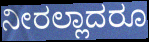
ನೀರಲ್ಲಾದರೂ